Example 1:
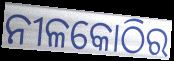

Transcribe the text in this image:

ନୀଳକୋଠିର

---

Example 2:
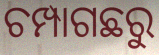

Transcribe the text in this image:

ଚମ୍ପାଗଛରୁ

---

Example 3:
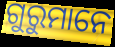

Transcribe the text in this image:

ଗୁରୁମାନେ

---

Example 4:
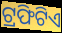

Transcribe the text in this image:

ଟ୍ରଫିଟିଏ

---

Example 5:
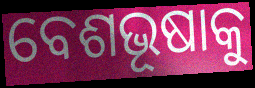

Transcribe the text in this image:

ବେଶଭୂଷାକୁ